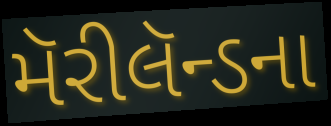
મૅરીલૅન્ડના